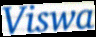
Viswa